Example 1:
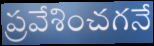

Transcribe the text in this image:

ప్రవేశించగనే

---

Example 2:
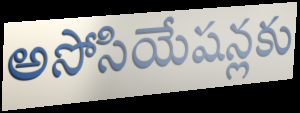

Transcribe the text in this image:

అసోసియేషన్లకు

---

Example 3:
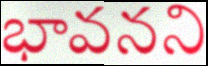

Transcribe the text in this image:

భావనని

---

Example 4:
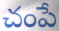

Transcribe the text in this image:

చంపే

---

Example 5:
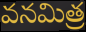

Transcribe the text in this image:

వనమిత్ర